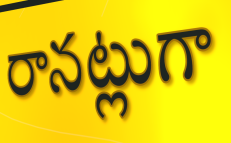
రానట్లుగా